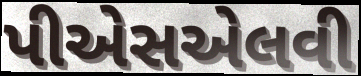
પીએસએલવી